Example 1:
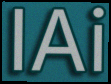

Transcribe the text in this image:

IAi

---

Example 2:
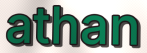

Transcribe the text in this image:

athan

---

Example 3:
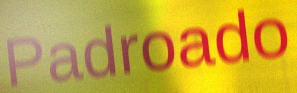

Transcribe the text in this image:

Padroado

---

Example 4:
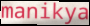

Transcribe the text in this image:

manikya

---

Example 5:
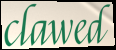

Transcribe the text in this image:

clawed